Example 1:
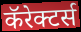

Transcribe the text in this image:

कॅरेक्टर्स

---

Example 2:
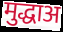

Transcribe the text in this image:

मुद्धाअ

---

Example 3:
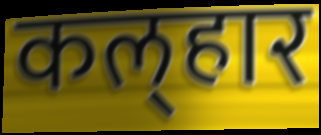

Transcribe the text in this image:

कल्हार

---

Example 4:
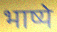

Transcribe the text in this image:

भाष्ये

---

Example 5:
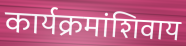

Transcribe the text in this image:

कार्यक्रमांशिवाय